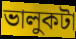
ভালুকটা